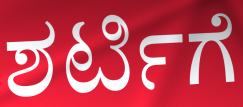
ಶರ್ಟಿಗೆ